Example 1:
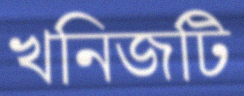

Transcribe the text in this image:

খনিজটি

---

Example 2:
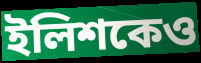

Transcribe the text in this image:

ইলিশকেও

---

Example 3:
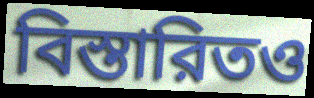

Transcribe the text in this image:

বিস্তারিতও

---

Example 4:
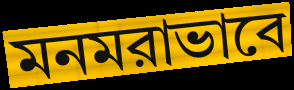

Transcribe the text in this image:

মনমরাভাবে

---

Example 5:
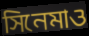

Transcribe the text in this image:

সিনেমাও